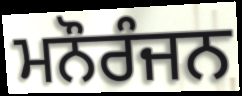
ਮਨੌਰੰਜਨ